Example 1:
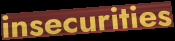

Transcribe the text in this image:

insecurities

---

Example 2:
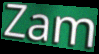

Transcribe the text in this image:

Zam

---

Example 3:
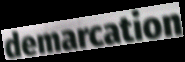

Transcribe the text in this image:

demarcation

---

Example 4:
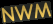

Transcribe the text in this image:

NWM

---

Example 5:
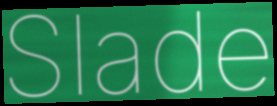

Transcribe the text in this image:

Slade